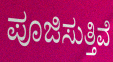
ಪೂಜಿಸುತ್ತಿವೆ